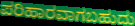
ಪರಿಹಾರವಾಗಬಹುದು